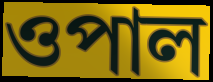
ওপাল